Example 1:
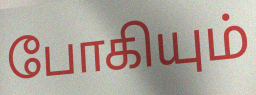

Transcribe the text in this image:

போகியும்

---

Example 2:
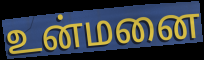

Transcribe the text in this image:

உன்மனை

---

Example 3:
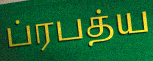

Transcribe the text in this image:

ப்ரபத்ய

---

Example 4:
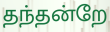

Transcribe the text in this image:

தந்தன்றே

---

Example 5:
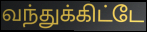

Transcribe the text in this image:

வந்துக்கிட்டே